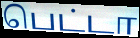
பெட்டா